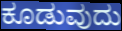
ಕೂಡುವುದು